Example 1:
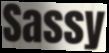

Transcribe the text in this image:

Sassy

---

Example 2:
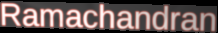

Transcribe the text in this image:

Ramachandran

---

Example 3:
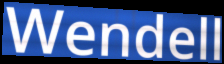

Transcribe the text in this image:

Wendell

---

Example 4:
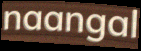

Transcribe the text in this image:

naangal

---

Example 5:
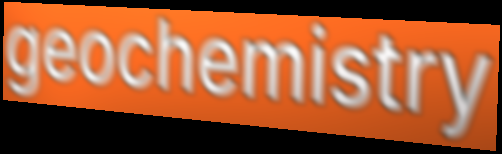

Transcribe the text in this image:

geochemistry